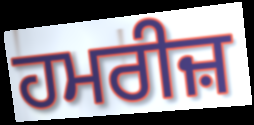
ਹਮਰੀਜ਼